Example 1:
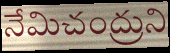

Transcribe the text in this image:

నేమిచంద్రుని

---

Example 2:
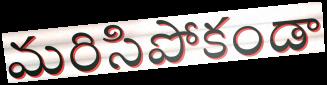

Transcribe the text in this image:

మరిసిపోకండా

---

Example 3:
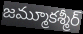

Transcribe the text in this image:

జమ్మూకశ్మీర్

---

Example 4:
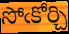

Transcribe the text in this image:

సోఁకోర్చి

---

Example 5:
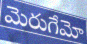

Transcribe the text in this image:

మెరుగేమో